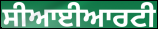
ਸੀਆਈਆਰਟੀ